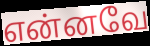
என்னவே